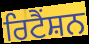
ਰਿਟੈਂਸ਼ਨ